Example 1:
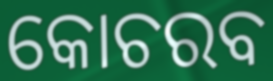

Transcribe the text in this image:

କୋଚରବ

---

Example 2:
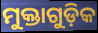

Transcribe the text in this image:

ମୁକ୍ତାଗୁଡ଼ିକ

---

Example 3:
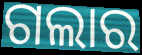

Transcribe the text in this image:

ଗଲାର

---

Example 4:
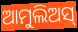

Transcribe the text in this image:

ଆମୁଲିଅସ୍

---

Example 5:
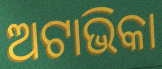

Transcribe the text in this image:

ଅଟାଭିକା